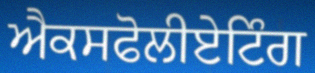
ਐਕਸਫੋਲੀਏਟਿੰਗ